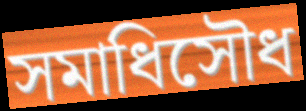
সমাধিসৌধ